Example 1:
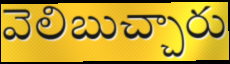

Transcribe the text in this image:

వెలిబుచ్చారు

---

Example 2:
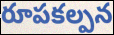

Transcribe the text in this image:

రూపకల్పన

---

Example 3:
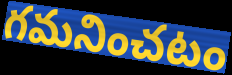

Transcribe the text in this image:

గమనించటం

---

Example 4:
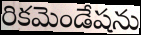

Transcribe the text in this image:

రికమెండేషను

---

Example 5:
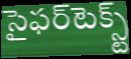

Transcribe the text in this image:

సైఫర్‌టెక్స్ట్